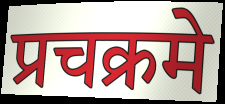
प्रचक्रमे